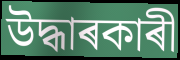
উদ্ধাৰকাৰী